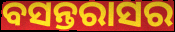
ବସନ୍ତରାସର